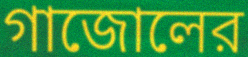
গাজোলের